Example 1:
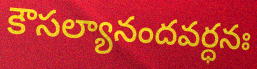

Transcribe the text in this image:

కౌసల్యానందవర్ధనః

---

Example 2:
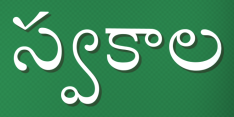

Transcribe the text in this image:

స్వకాల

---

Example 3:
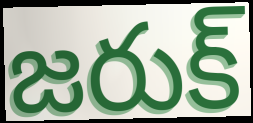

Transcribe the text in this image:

జరుక్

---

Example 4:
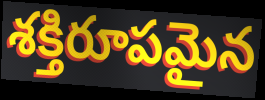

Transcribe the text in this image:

శక్తిరూపమైన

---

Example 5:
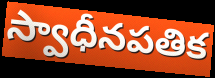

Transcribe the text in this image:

స్వాధీనపతిక